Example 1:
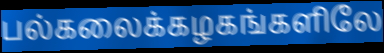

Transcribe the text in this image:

பல்கலைக்கழகங்களிலே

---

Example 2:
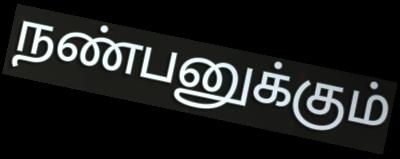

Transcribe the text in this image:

நண்பனுக்கும்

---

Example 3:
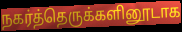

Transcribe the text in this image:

நகர்த்தெருக்களினூடாக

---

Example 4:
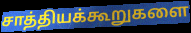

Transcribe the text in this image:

சாத்தியக்கூறுகளை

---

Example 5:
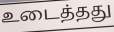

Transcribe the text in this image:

உடைத்தது